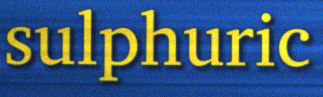
sulphuric